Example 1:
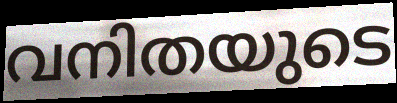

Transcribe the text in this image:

വനിതയുടെ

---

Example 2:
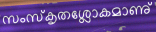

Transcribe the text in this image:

സംസ്കൃതശ്ലോകമാണു്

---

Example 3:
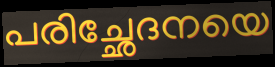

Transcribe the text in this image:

പരിച്ഛേദനയെ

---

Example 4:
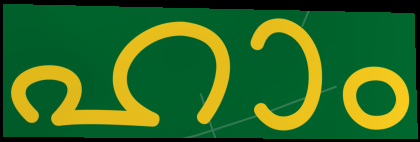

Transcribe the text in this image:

ഹാം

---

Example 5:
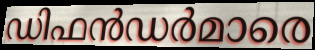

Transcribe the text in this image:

ഡിഫൻഡർമാരെ